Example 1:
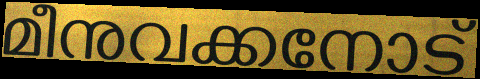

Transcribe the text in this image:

മീനുവക്കനോട്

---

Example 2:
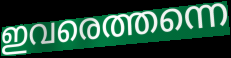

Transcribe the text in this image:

ഇവരെത്തന്നെ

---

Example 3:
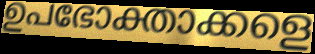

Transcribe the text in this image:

ഉപഭോക്താക്കളെ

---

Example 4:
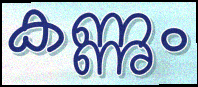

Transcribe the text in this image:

കണ്ണും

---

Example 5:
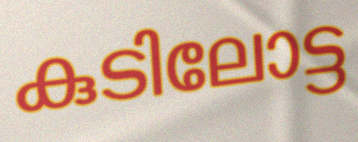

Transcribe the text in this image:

കുടിലോട്ട